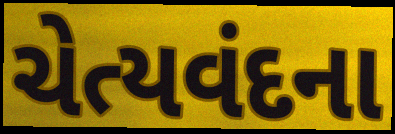
ચેત્યવંદના